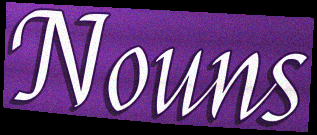
Nouns